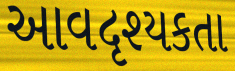
આવદૃશ્યકતા